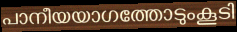
പാനീയയാഗത്തോടുംകൂടി